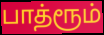
பாத்ரூம்